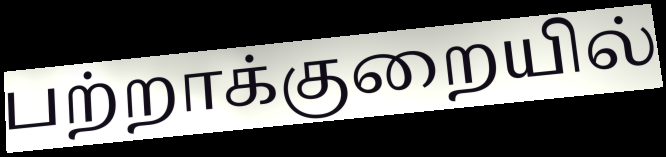
பற்றாக்குறையில்